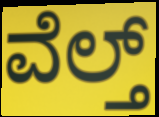
ವೆಲ್ತ್